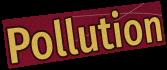
Pollution